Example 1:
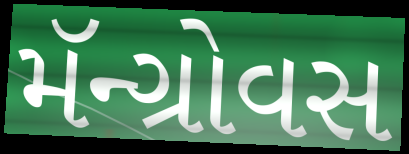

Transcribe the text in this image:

મૅન્ગ્રોવસ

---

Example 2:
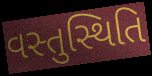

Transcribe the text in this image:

વસ્તુસ્થિતિ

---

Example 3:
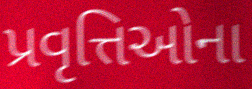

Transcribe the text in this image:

પ્રવૃત્તિઓના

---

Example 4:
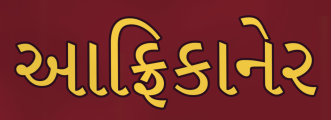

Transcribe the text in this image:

આફ્રિકાનેર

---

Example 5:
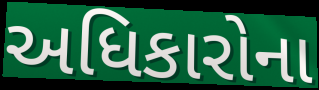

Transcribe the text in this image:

અધિકારોના